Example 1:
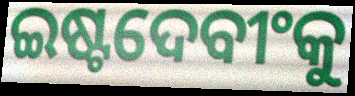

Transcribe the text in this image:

ଇଷ୍ଟଦେବୀଂକୁ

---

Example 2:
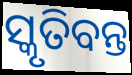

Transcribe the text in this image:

ସ୍କୃତିବନ୍ତ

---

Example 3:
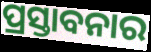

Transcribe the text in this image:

ପ୍ରସ୍ତାବନାର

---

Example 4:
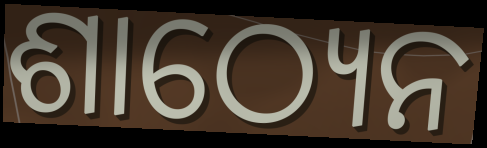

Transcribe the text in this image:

ଶାଠ୍ୟେନ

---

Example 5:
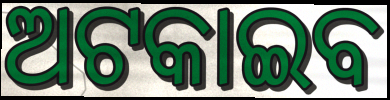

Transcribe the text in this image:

ଅଟକାଇବ